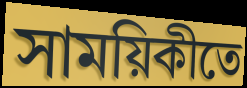
সাময়িকীতে